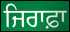
ਜਿਰਾਫ਼ਾ